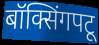
बॉक्सिंगपटू